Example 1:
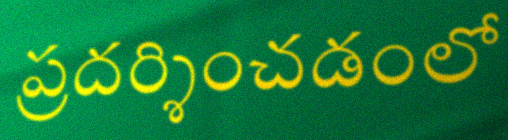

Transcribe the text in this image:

ప్రదర్శించడంలో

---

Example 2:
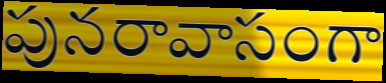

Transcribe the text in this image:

పునరావాసంగా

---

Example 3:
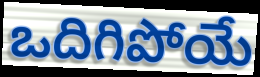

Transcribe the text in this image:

ఒదిగిపోయే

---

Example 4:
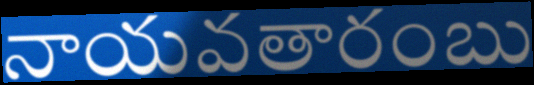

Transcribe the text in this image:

నాయవతారంబు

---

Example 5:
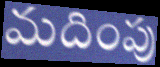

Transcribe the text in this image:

మదింపు